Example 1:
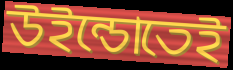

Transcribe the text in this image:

উইন্ডোতেই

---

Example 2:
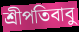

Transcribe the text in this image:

শ্রীপতিবাবু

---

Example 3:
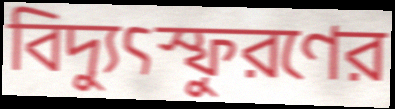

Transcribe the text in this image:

বিদ্যুৎস্ফুরণের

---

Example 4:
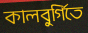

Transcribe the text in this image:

কালবুর্গিতে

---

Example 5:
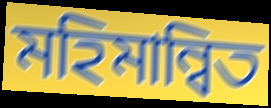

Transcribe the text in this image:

মহিমান্বিত